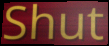
Shut